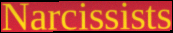
Narcissists